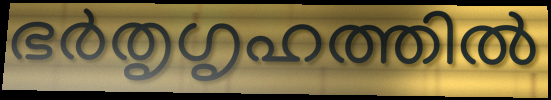
ഭർതൃഗൃഹത്തിൽ